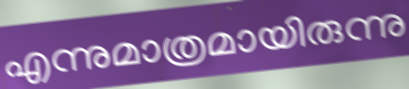
എന്നുമാത്രമായിരുന്നു